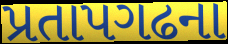
પ્રતાપગઢના